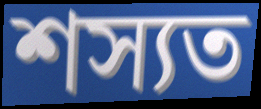
শস্যত